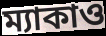
ম্যাকাও